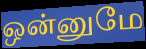
ஒன்னுமே